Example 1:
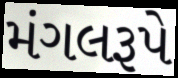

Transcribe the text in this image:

મંગલરૂપે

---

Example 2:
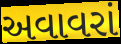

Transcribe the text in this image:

અવાવરાં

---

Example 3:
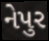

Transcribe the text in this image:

નેપુર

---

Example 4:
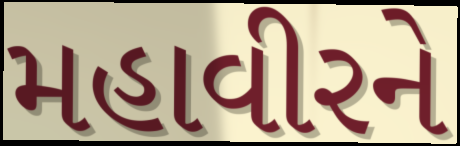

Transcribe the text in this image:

મહાવીરને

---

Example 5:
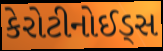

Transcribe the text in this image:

કેરોટીનોઈડ્સ